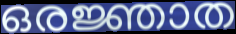
ഒരജ്ഞാത